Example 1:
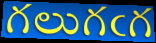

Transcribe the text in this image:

గలుగఁగ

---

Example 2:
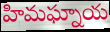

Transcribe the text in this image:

హిమఘ్నాయ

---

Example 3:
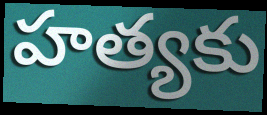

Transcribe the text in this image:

హత్యకు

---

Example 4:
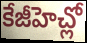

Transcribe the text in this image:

కేజీహెచ్లో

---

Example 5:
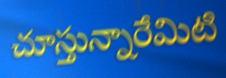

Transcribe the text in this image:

చూస్తున్నారేమిటి